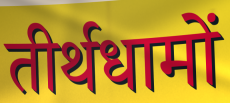
तीर्थधामों